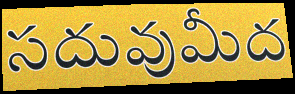
సదువుమీద